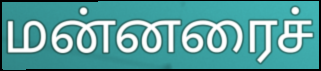
மன்னரைச்